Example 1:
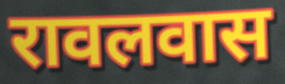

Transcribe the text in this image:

रावलवास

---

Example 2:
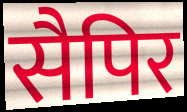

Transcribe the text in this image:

सैपिर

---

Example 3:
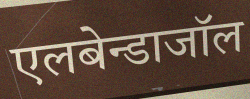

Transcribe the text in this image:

एलबेन्डाजॉल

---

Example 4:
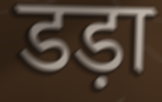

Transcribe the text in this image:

डड़ा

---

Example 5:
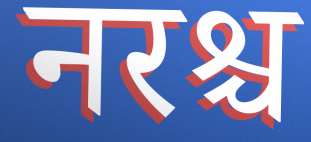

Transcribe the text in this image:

नरश्च